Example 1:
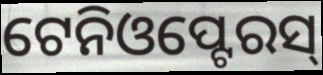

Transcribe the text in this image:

ଟେନିଓପ୍ଟେରସ୍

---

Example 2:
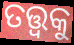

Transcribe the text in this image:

ତତ୍ତ୍ଵକୁ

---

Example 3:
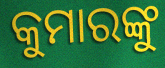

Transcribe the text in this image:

କୁମାରଙ୍କୁ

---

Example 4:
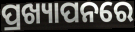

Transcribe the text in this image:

ପ୍ରଖ୍ୟାପନରେ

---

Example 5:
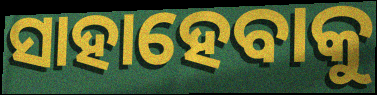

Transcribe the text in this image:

ସାହାହେବାକୁ